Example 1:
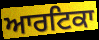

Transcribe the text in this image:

ਆਰਟਿਕਾ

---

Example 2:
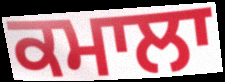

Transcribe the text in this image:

ਕਮਾਲਾ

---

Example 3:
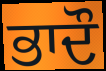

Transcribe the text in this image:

ਭਾਦੌ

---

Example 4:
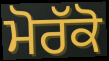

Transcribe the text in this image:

ਮੋਰੱਕੋ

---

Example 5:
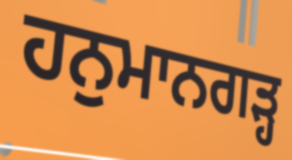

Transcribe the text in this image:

ਹਨੁਮਾਨਗੜ੍ਹ